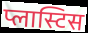
प्लास्टिस